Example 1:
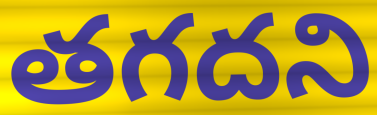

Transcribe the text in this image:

తగదని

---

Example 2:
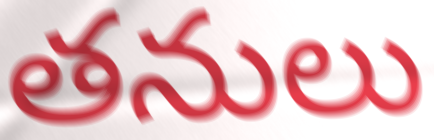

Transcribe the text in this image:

తనులు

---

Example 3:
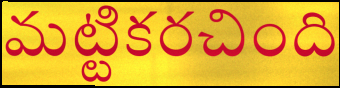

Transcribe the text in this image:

మట్టికరచింది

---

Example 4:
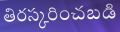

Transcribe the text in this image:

తిరస్కరించబడి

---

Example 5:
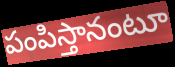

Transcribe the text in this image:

పంపిస్తానంటూ